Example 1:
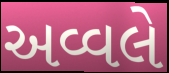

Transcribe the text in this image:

અવ્વલે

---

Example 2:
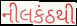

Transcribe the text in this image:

નીલકંઠથી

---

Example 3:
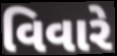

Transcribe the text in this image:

વિવારે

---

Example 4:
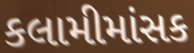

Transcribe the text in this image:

કલામીમાંસક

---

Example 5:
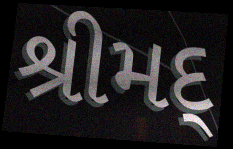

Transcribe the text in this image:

શ્રીમદ્‍